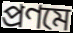
প্রণমে